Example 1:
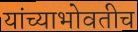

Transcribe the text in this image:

यांच्याभोवतीच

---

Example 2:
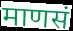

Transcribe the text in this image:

माणसं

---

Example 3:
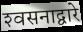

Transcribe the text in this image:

श्वसनाद्वारे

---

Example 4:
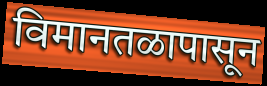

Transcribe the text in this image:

विमानतळापासून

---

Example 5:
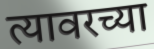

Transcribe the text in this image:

त्यावरच्या